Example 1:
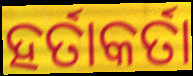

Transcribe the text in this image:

ହର୍ତାକର୍ତା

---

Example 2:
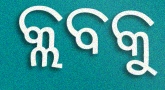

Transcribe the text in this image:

କ୍ଲବକୁ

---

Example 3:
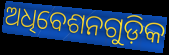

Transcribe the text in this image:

ଅଧିବେଶନଗୁଡ଼ିକ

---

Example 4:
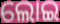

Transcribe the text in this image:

ଲୋଇ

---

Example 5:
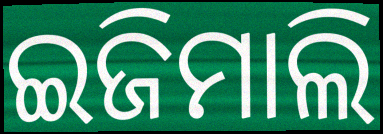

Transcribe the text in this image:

ଇଜିମାଲି